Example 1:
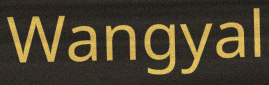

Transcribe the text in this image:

Wangyal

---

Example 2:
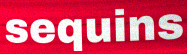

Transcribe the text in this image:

sequins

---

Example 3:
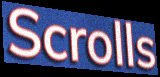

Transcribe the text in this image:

Scrolls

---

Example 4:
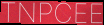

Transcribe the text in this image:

TNPCEE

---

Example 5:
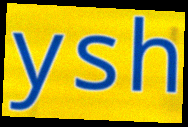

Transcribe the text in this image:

ysh